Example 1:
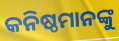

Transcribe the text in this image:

କନିଷ୍ଠମାନଙ୍କୁ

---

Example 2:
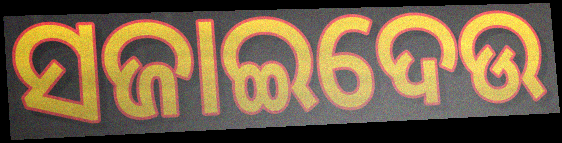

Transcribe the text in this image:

ସଜାଇଦେଉ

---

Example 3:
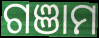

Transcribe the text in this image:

ଗଞାମ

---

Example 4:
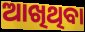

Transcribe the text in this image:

ଆଖିଥିବା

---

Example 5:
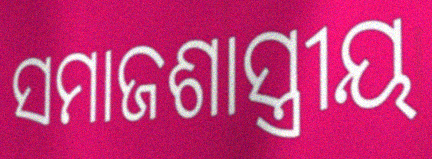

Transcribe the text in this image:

ସମାଜଶାସ୍ତ୍ରୀୟ